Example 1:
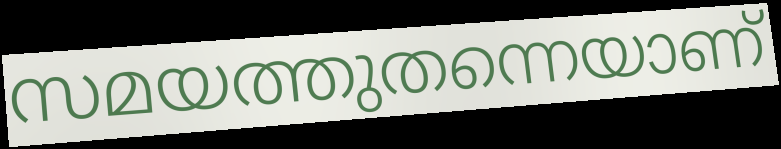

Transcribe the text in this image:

സമയത്തുതന്നെയാണ്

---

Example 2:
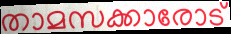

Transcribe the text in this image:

താമസക്കാരോട്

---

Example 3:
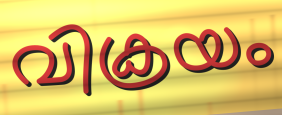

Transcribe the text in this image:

വിക്രയം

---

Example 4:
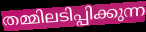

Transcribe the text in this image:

തമ്മിലടിപ്പിക്കുന്ന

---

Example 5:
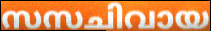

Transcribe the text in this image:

സസചിവായ